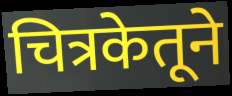
चित्रकेतूने